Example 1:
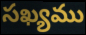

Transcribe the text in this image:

సఖ్యము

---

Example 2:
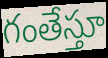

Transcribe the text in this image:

గంతేస్తూ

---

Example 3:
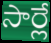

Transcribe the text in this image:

సార్లే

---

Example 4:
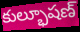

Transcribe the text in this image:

కుల్భూషణ్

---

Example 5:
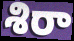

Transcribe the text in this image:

శిరా